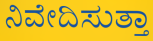
ನಿವೇದಿಸುತ್ತಾ